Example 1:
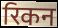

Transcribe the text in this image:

रिकन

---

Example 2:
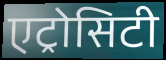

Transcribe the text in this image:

एट्रोसिटी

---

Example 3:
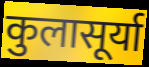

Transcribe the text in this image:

कुलासूर्या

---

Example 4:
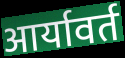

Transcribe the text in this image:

आर्यावर्त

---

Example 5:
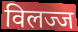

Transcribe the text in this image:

विलज्ज